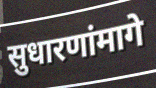
सुधारणांमागे